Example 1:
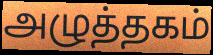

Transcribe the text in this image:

அழுத்தகம்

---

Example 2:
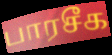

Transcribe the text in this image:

பாரசீக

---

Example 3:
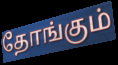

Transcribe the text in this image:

தோங்கும்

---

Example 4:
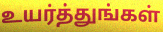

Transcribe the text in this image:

உயர்த்துங்கள்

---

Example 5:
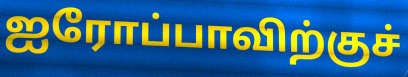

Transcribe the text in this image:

ஐரோப்பாவிற்குச்